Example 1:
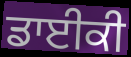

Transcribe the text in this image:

ਡਾਈਕੀ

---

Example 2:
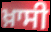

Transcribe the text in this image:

ਖ਼ਾਸੀ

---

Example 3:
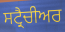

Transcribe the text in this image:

ਸਟ੍ਰੈਚੀਅਰ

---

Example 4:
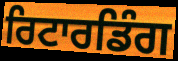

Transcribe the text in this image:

ਰਿਟਾਰਡਿੰਗ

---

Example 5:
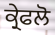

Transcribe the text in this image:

ਕ੍ਰੇਫਲੋ